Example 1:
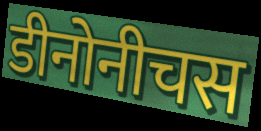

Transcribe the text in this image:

डीनोनीचस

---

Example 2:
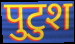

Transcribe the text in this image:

पुटुश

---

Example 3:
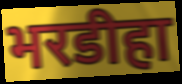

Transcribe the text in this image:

भरडीहा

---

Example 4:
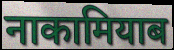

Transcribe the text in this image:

नाकामियाब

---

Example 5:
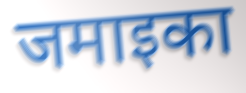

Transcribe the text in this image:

जमाइका